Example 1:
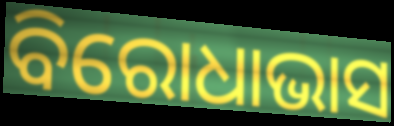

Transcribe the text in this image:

ବିରୋଧାଭାସ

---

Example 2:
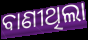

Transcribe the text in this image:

ବାଣୀଥିଲା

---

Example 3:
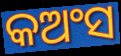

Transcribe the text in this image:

କଅଂସ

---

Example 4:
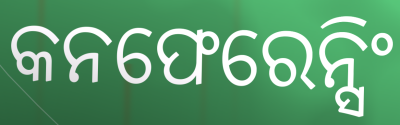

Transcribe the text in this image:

କନଫେରେନ୍ସିଂ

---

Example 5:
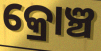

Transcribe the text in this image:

କ୍ରୋଞ୍ଚ